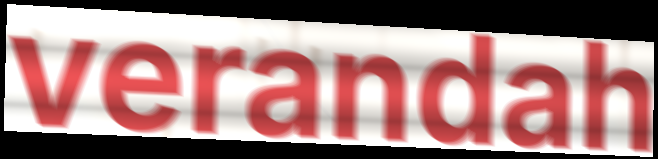
verandah